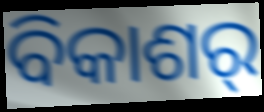
ବିକାଶର୍